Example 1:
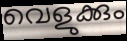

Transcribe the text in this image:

വെളുക്കും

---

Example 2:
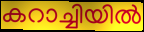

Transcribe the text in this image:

കറാച്ചിയിൽ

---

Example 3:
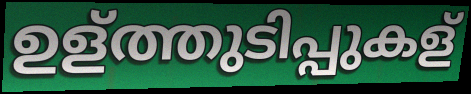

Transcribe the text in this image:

ഉള്ത്തുടിപ്പുകള്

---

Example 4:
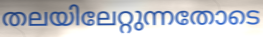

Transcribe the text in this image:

തലയിലേറ്റുന്നതോടെ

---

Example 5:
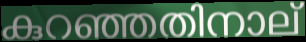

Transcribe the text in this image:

കുറഞ്ഞതിനാല്